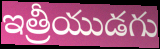
ఇత్రీయుడగు